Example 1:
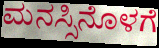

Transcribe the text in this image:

ಮನಸ್ಸಿನೊಳಗೆ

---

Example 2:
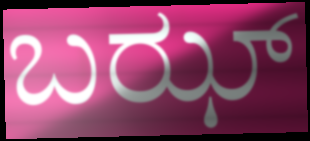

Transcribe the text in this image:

ಬಝ್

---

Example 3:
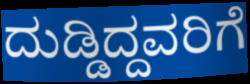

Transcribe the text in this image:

ದುಡ್ಡಿದ್ದವರಿಗೆ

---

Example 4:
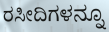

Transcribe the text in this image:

ರಸೀದಿಗಳನ್ನೂ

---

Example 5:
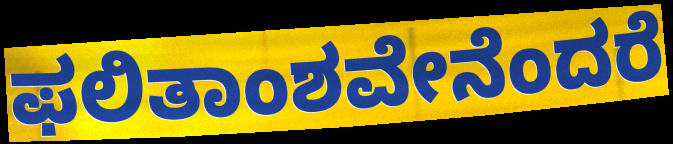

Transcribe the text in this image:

ಫಲಿತಾಂಶವೇನೆಂದರೆ